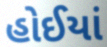
હોઈયાં